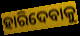
ହାରିଦେବାକୁ